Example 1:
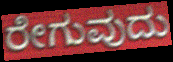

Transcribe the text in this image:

ರೇಗುವುದು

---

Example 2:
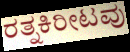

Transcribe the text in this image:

ರತ್ನಕಿರೀಟವು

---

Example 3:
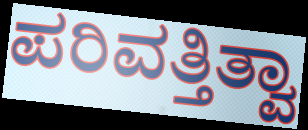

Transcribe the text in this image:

ಪರಿವತ್ತಿತ್ವಾ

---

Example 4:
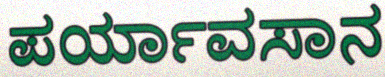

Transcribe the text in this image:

ಪರ್ಯಾವಸಾನ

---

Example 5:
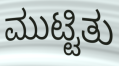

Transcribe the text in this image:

ಮುಟ್ಟಿತು